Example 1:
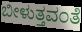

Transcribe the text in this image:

ಬೀಳುತ್ತವಂತೆ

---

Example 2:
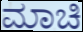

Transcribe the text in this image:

ಮಾಚಿ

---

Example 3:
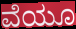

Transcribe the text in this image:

ವೆಯೂ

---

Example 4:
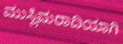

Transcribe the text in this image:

ಮುಸ್ಲಿಮರಾದಿಯಾಗಿ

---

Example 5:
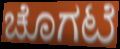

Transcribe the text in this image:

ಚೊಗಟೆ